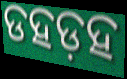
ଡହଡ଼ହ